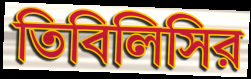
তিবিলিসির